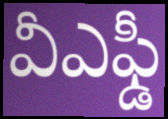
వీఎఫ్డీ